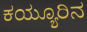
ಕಯ್ಯೂರಿನ